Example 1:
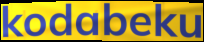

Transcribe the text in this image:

kodabeku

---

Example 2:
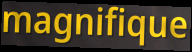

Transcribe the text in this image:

magnifique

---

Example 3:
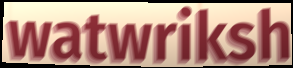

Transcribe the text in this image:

watwriksh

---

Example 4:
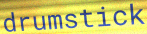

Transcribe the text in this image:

drumstick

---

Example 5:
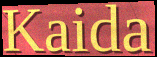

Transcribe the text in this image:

Kaida